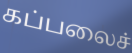
கப்பலைச்